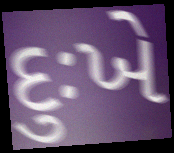
દુઃખે